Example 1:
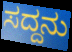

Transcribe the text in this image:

ಸದ್ದನು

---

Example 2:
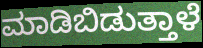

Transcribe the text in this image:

ಮಾಡಿಬಿಡುತ್ತಾಳೆ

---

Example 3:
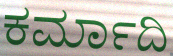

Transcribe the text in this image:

ಕರ್ಮಾದಿ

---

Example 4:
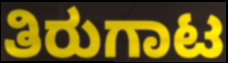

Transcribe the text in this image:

ತಿರುಗಾಟ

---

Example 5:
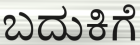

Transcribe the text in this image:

ಬದುಕಿಗೆ